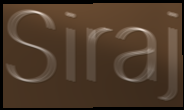
Siraj